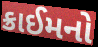
ક્રાઈમનો